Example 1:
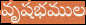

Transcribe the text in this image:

వృషభముల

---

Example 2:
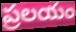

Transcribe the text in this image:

ప్రలయం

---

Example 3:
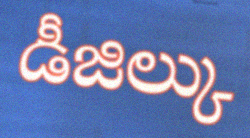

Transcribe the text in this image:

డీజిల్కు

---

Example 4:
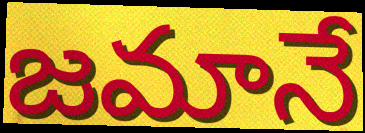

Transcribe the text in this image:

జమానే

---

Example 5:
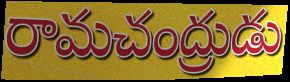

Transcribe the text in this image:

రామచంద్రుడు